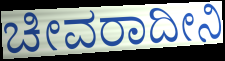
ಚೀವರಾದೀನಿ